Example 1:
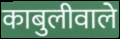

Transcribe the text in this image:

काबुलीवाले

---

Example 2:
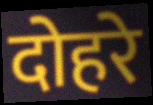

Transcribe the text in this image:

दोहरे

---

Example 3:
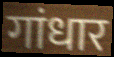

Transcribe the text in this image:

गांधार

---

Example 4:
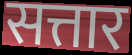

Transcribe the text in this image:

सत्तार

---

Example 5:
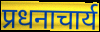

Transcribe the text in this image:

प्रधनाचार्य